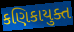
કણિકાયુક્ત